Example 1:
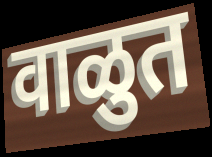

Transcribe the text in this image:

वाळुत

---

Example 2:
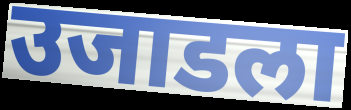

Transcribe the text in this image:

उजाडला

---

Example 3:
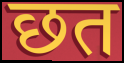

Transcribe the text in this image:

छत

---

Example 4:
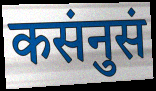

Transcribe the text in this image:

कसंनुसं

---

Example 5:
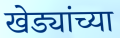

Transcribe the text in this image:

खेड्यांच्या